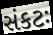
સંકટઃ